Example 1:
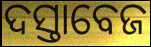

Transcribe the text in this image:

ଦସ୍ତାବେଜ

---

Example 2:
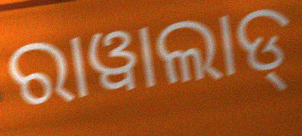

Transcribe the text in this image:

ରାୱାଲାଡ୍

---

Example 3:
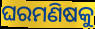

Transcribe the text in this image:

ଘରମଣିଷକୁ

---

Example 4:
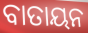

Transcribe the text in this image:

ବାତାୟନ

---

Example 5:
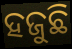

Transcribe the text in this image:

ହଜୁଛି